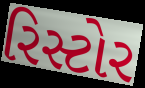
રિસ્ટોર